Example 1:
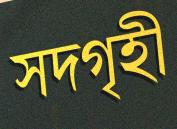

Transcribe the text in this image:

সদগৃহী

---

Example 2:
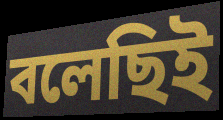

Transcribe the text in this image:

বলেছিই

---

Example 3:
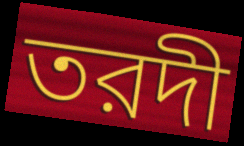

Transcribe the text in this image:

তরদী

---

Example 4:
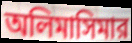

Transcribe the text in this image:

অলিমাসিমার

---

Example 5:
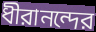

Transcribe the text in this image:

ধীরানন্দের